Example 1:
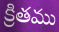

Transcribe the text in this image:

క్రితము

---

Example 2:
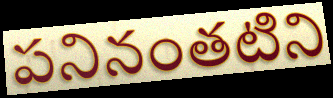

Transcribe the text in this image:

పనినంతటిని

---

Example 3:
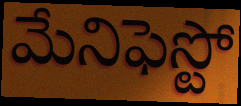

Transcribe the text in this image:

మేనిఫెస్టో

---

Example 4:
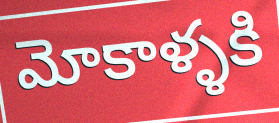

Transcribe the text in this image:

మోకాళ్ళకి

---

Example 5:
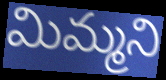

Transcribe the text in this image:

మిమ్మని